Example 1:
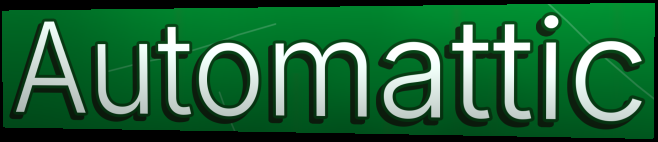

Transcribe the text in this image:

Automattic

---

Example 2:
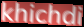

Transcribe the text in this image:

khichdi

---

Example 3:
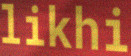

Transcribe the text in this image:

likhi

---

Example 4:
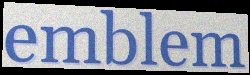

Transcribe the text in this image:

emblem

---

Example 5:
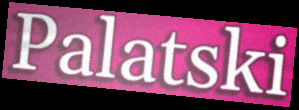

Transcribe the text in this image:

Palatski